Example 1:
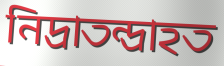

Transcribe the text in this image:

নিদ্রাতন্দ্রাহত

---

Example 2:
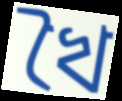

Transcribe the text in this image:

খৈ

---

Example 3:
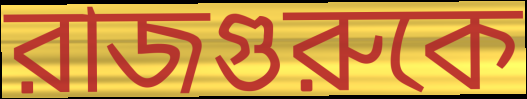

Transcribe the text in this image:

রাজগুরুকে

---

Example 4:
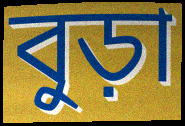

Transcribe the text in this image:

বুড়া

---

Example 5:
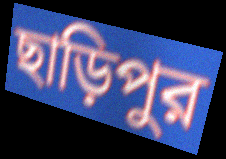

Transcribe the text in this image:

ছাড়িপুর